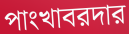
পাংখাবরদার